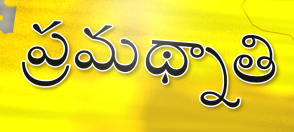
ప్రమథ్నాతి